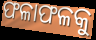
ଫଳାଫଳକୁ